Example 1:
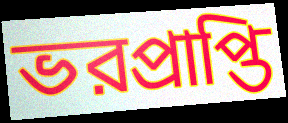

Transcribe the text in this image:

ভরপ্রাপ্তি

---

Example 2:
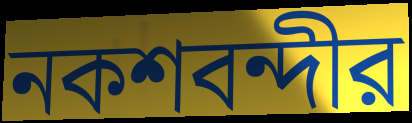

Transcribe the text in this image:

নকশবন্দীর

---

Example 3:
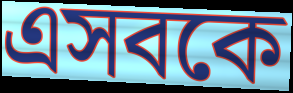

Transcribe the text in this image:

এসবকে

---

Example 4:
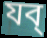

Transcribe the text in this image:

যব্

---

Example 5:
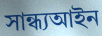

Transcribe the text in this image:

সান্ধ্যআইন